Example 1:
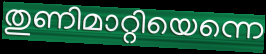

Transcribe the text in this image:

തുണിമാറ്റിയെന്നെ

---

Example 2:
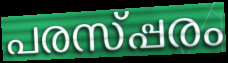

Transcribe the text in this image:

പരസ്പ്പരം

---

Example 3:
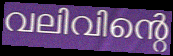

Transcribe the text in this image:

വലിവിന്റെ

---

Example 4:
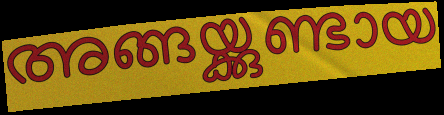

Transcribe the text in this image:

അങ്ങയ്ക്കുണ്ടായ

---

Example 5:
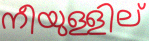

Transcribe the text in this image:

നീയുള്ളില്